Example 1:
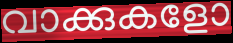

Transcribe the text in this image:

വാക്കുകളോ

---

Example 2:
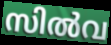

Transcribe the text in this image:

സിൽവ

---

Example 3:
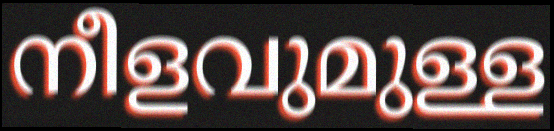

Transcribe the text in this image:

നീളവുമുള്ള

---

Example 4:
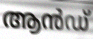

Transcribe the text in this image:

ആൻഡ്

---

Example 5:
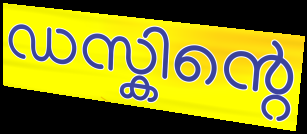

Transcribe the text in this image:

ഡസ്കിന്റെ